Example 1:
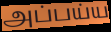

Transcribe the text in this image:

அப்பய்ய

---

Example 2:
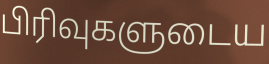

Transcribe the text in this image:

பிரிவுகளுடைய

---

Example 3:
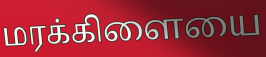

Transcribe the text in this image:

மரக்கிளையை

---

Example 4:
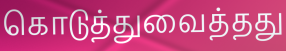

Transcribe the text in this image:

கொடுத்துவைத்தது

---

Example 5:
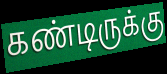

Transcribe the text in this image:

கண்டிருக்கு